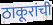
ठाकूरांची